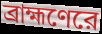
ব্রাহ্মণেরে